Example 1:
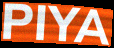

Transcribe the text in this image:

PIYA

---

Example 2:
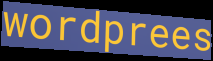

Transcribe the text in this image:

wordprees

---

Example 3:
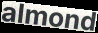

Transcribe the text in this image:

almond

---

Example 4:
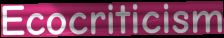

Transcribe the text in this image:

Ecocriticism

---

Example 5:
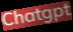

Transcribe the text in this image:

Chatgpt